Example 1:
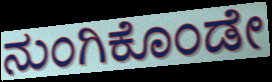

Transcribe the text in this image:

ನುಂಗಿಕೊಂಡೇ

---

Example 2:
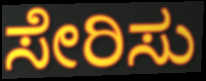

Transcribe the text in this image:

ಸೇರಿಸು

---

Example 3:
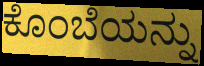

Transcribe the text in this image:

ಕೊಂಬೆಯನ್ನು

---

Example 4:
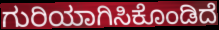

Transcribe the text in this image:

ಗುರಿಯಾಗಿಸಿಕೊಂಡಿದೆ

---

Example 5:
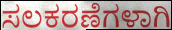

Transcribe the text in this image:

ಸಲಕರಣೆಗಳಾಗಿ